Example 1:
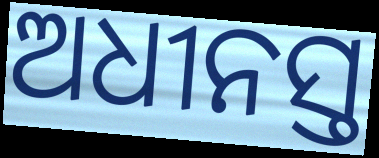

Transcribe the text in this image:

ଅଧୀନସ୍ତ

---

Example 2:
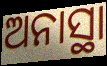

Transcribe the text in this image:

ଅନାସ୍ଥା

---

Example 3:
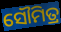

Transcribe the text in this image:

ସୌମିତ୍ର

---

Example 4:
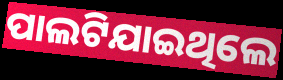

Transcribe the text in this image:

ପାଲଟିଯାଇଥିଲେ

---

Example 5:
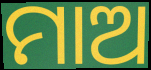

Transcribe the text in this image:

ମାଅ